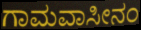
ಗಾಮವಾಸೀನಂ